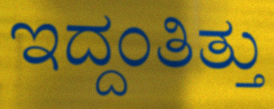
ಇದ್ದಂತಿತ್ತು